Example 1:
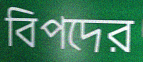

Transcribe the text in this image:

বিপদের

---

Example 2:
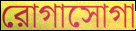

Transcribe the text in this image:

রোগাসোগা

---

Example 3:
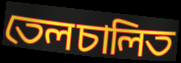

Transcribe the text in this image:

তেলচালিত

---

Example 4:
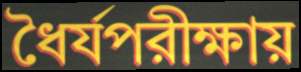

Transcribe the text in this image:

ধৈর্যপরীক্ষায়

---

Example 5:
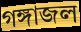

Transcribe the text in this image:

গঙ্গাজল